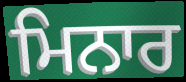
ਮਿਨਾਰ